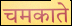
चमकाते